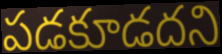
పడకూడదని